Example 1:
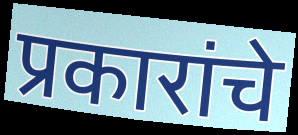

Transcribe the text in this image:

प्रकारांचे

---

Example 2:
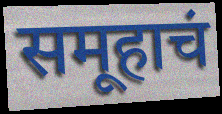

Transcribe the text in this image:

समूहाचं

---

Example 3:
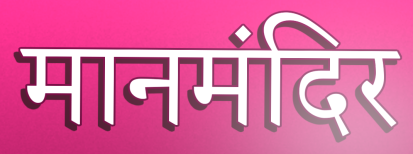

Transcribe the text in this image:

मानमंदिर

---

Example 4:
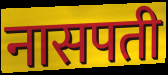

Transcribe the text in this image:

नासपती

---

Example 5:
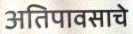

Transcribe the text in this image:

अतिपावसाचे